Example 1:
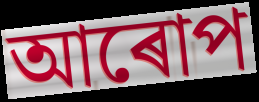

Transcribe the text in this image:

আৰোপ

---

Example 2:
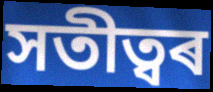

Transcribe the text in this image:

সতীত্বৰ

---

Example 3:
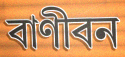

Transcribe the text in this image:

বাণীবন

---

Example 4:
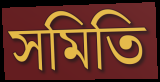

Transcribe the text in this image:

সমিতি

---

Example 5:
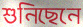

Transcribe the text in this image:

শুনিছেনে